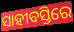
ସାହୀବସ୍ତିରେ